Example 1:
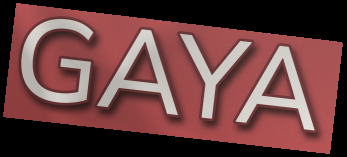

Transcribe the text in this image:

GAYA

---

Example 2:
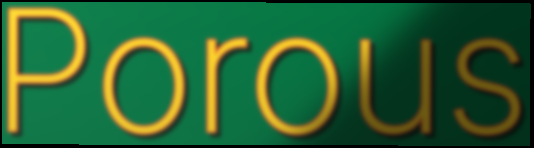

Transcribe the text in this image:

Porous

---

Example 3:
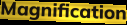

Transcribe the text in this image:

Magnification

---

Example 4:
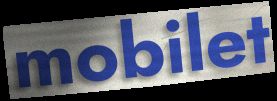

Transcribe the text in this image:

mobilet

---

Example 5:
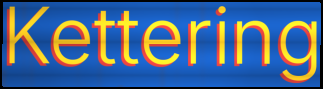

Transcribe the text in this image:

Kettering